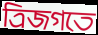
ত্রিজগতে